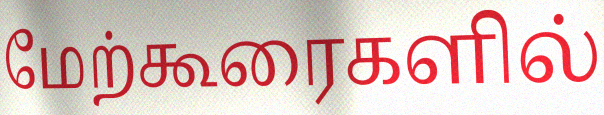
மேற்கூரைகளில்